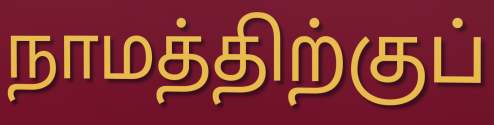
நாமத்திற்குப்